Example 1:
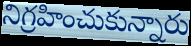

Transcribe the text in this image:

నిగ్రహించుకున్నారు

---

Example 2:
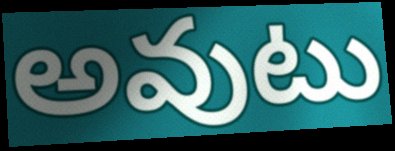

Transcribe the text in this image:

అవుటు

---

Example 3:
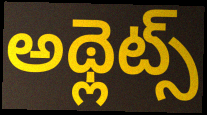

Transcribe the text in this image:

అథ్లెట్స్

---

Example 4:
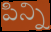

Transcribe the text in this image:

పిన్ని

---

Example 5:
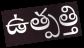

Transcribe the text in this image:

ఉత్పత్తి